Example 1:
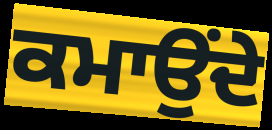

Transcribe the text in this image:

ਕਮਾਉਂਦੇ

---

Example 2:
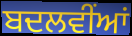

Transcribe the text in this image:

ਬਦਲਵੀਂਆਂ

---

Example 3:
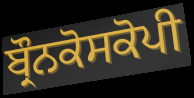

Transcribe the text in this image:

ਬ੍ਰੌਨਕੋਸਕੋਪੀ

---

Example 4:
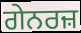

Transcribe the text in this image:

ਗੇਨਰਜ਼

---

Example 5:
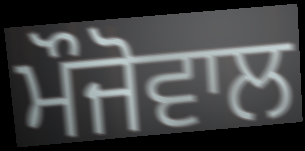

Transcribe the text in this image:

ਮੌਜੋਵਾਲ